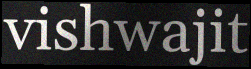
vishwajit